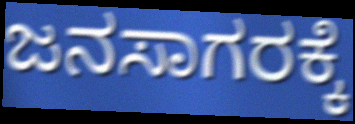
ಜನಸಾಗರಕ್ಕೆ